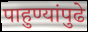
पाहुण्यांपुढे